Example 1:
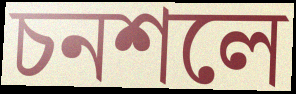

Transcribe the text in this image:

চনশলে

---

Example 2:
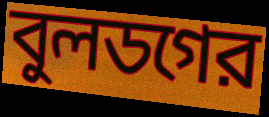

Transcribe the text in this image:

বুলডগের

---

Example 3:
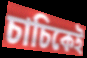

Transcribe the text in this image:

চাচিকেই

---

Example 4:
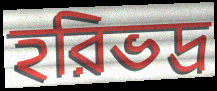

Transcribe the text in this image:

হরিভদ্র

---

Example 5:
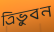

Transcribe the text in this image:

ত্রিভুবন